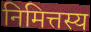
निमित्तस्य